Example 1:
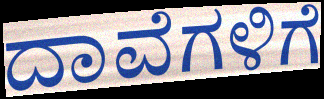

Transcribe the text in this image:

ದಾವೆಗಳಿಗೆ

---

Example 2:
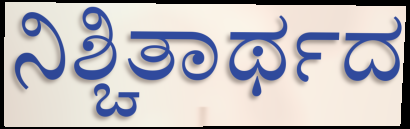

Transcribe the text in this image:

ನಿಶ್ಚಿತಾರ್ಥದ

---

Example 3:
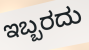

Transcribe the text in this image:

ಇಬ್ಬರದು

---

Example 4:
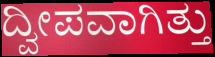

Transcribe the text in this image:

ದ್ವೀಪವಾಗಿತ್ತು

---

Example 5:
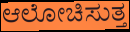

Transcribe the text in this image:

ಆಲೋಚಿಸುತ್ತ